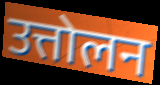
उत्तोलन